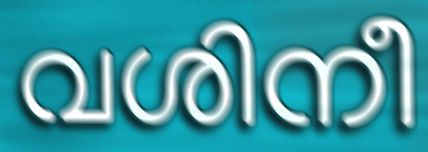
വശിനീ